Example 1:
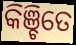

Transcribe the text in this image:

କିଞ୍ଚିତେ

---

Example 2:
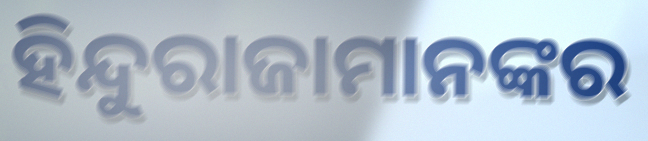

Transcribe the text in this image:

ହିନ୍ଦୁରାଜାମାନଙ୍କର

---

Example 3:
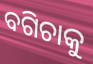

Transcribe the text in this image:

ବଗିଚାକୁ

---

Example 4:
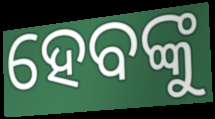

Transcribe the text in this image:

ହେବଙ୍କୁ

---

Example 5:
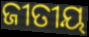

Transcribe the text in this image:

ଜୀତୀୟ